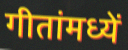
गीतांमध्यें